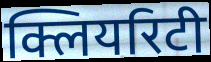
क्लियरिटी